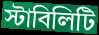
স্টাবিলিটি